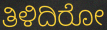
ತಿಳಿದಿರೋ